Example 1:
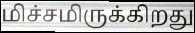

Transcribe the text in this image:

மிச்சமிருக்கிறது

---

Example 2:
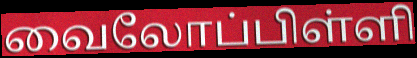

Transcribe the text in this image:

வைலோப்பிள்ளி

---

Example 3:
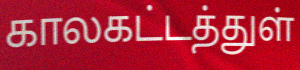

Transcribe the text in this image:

காலகட்டத்துள்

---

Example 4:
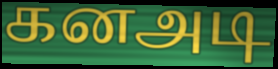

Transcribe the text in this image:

கனஅடி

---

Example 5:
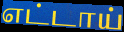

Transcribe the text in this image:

எட்டாய்